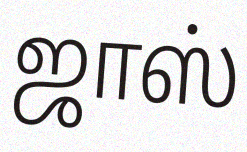
ஜாஸ்